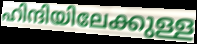
ഹിന്ദിയിലേക്കുള്ള